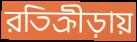
রতিক্রীড়ায়